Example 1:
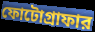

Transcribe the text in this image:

ফোটোগ্রাফার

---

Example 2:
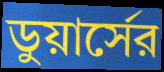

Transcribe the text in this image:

ডুয়ার্সের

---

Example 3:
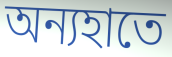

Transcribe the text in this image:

অন্যহাতে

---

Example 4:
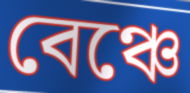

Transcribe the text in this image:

বেঞ্চে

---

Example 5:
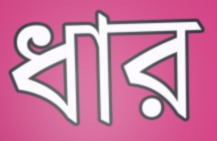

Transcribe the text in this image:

ধার